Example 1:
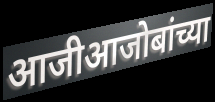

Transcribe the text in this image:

आजीआजोबांच्या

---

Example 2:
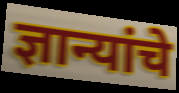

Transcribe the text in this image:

ज्ञान्यांचे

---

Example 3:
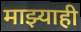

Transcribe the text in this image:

माझ्याही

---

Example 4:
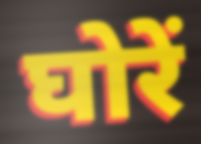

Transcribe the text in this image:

घोरें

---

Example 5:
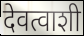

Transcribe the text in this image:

देवत्वाशी